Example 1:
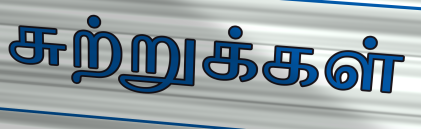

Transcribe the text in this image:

சுற்றுக்கள்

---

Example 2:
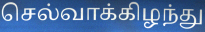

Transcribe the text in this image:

செல்வாக்கிழந்து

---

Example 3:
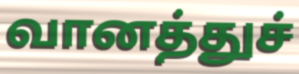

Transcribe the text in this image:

வானத்துச்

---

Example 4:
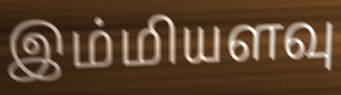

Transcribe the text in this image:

இம்மியளவு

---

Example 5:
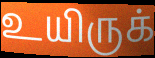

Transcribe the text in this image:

உயிருக்